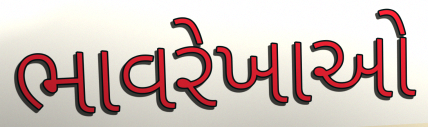
ભાવરેખાઓ